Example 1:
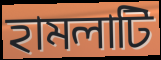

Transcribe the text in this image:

হামলাটি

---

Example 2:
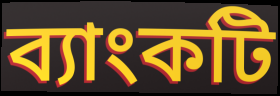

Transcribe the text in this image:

ব্যাংকটি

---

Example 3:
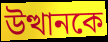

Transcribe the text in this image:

উত্থানকে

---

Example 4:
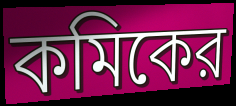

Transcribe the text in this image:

কমিকের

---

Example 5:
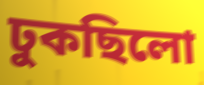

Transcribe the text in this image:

ঢুকছিলো